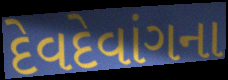
દેવદેવાંગના